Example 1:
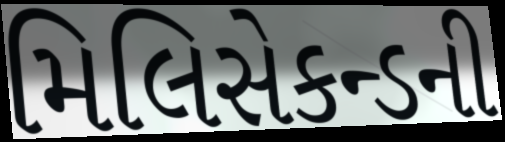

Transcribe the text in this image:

મિલિસેકન્ડની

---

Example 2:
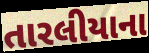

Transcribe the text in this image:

તારલીયાના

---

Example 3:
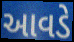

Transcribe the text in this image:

આવડે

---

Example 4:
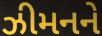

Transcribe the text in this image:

ઝીમનને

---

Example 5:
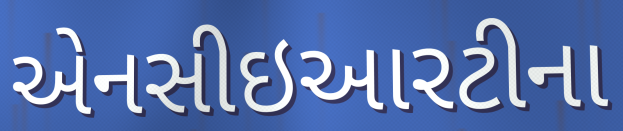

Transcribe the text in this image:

એનસીઇઆરટીના